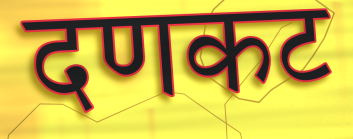
दणकट